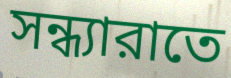
সন্ধ্যারাতে